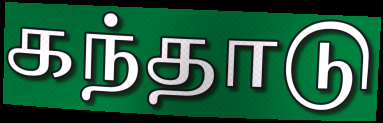
கந்தாடு